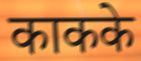
काकके